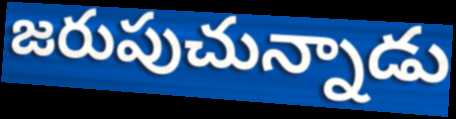
జరుపుచున్నాడు